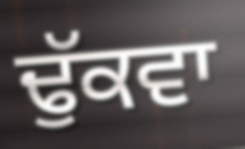
ਢੁੱਕਵਾ